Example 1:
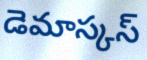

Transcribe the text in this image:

డెమాస్కస్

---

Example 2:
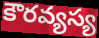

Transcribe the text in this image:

కౌరవ్యస్య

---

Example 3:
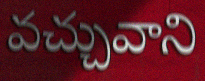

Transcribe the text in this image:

వచ్చువాని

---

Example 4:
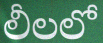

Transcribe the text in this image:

లీలలో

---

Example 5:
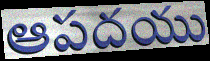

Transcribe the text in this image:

ఆపదయు